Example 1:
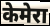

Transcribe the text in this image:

केमेरा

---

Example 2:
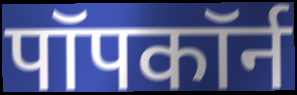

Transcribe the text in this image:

पॉपकॉर्न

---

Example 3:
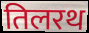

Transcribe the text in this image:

तिलरथ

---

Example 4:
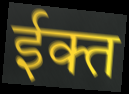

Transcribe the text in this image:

ईक्त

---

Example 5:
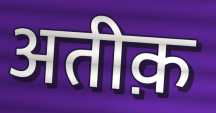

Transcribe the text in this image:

अतीक़